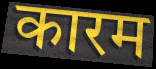
कारम